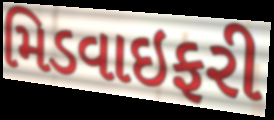
મિડવાઇફરી